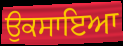
ਉਕਸਾਇਆ